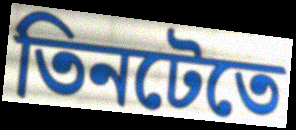
তিনটেতে